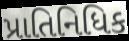
પ્રાતિનિધિક